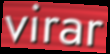
virar